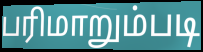
பரிமாறும்படி